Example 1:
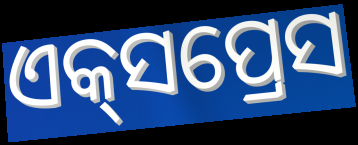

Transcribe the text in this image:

ଏକ୍‍ସପ୍ରେସ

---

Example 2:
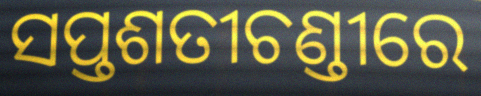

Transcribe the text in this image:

ସପ୍ତଶତୀଚଣ୍ଡୀରେ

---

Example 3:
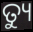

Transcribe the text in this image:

ତ୍ୟୁ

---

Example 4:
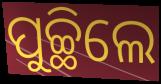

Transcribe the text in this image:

ପୁଚ୍ଛିଲେ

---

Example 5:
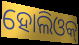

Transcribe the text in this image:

ହୋଲିଓକ୍